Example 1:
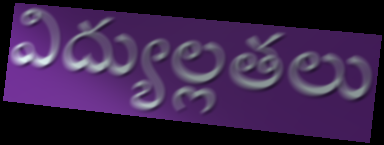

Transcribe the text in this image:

విద్యుల్లతలు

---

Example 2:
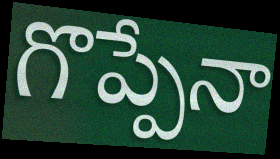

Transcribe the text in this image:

గొప్పేనా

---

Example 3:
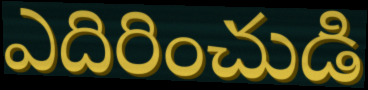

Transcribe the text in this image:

ఎదిరించుడి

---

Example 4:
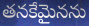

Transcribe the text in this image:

తనకేమైనను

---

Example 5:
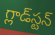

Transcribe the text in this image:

గ్లాడ్‌స్టన్